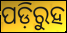
ପଡ଼ିରୁହ